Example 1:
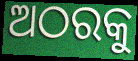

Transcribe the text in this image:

ଅଠରକୁ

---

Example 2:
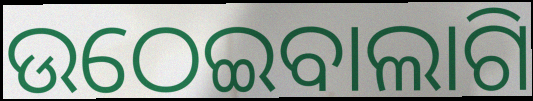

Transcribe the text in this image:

ଉଠେଇବାଲାଗି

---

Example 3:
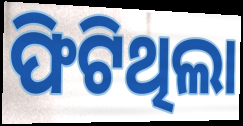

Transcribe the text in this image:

ଫିଟିଥିଲା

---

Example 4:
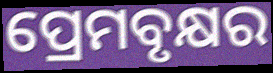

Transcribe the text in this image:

ପ୍ରେମବୃକ୍ଷର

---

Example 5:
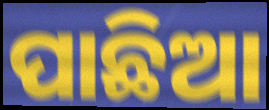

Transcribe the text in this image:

ପାଛିଆ